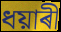
ধয়াৰী